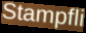
Stampfli